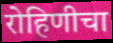
रोहिणीचा